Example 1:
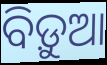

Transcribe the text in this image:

ବିଡ଼ୁଆ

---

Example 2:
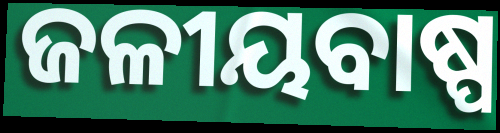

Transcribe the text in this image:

ଜଳୀୟବାଷ୍ପ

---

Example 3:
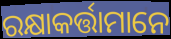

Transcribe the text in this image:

ରକ୍ଷାକର୍ତ୍ତାମାନେ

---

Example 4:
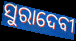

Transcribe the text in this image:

ସୁରାଦେବୀ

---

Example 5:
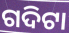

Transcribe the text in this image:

ଗଦିଟା